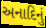
અનાદિનું